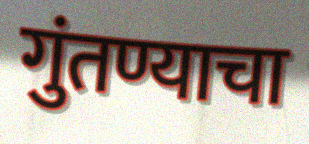
गुंतण्याचा